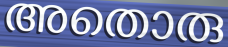
അതൊരു